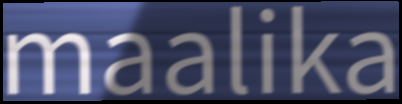
maalika